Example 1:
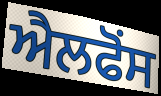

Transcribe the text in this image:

ਐਲਫੋਂਸ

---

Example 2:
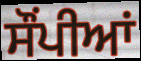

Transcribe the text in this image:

ਸੌਂਪੀਆਂ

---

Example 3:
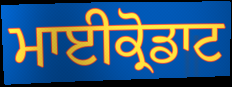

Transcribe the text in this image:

ਮਾਈਕ੍ਰੋਡਾਟ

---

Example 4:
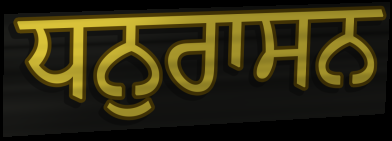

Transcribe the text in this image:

ਧਨੁਰਾਸਨ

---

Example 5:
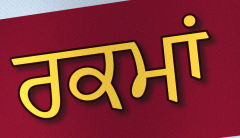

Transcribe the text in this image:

ਰਕਮਾਂ